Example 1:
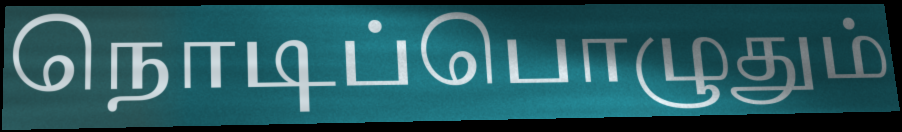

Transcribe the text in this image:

நொடிப்பொழுதும்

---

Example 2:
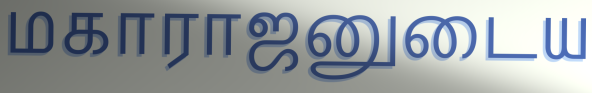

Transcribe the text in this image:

மகாராஜனுடைய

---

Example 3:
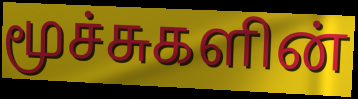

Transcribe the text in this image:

மூச்சுகளின்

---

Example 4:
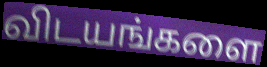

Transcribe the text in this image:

விடயங்களை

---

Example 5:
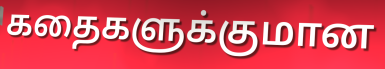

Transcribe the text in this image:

கதைகளுக்குமான